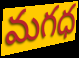
మగధ